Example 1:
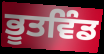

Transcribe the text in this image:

ਭੂਤਵਿੰਡ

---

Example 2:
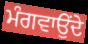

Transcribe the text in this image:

ਮੰਗਵਾਉਂਦੇ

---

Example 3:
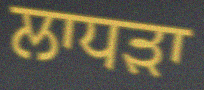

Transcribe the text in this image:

ਲਾਧੜਾ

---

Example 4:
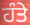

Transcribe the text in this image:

ਹੰਤੇ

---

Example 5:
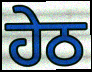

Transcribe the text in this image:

ਹੇਠ